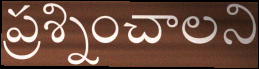
ప్రశ్నించాలని